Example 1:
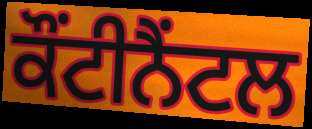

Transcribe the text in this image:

ਕੌਂਟੀਨੈਂਟਲ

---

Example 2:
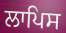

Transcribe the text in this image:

ਲਾਪਿਸ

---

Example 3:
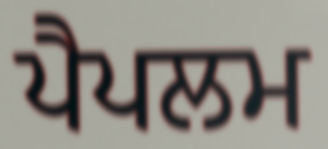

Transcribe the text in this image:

ਪੈਪਲਮ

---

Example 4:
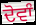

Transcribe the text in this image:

ਦੋਵਾੰ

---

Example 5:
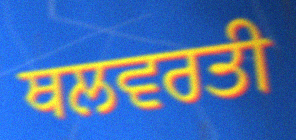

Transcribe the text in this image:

ਥਲਵਰਤੀ